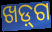
ଖଡ଼୍‌ଗ